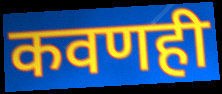
कवणही